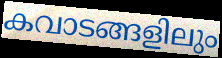
കവാടങ്ങളിലും